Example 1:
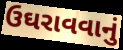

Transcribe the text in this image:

ઉઘરાવવાનું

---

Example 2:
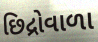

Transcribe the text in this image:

છિદ્રોવાળા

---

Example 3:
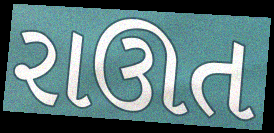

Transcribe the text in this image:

રાઊત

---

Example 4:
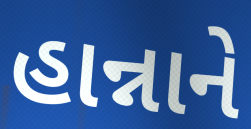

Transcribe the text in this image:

હાન્નાને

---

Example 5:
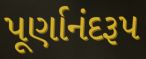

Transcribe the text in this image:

પૂર્ણાનંદરૂપ